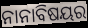
ନାନାବିଷୟର